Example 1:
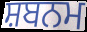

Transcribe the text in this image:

ਸ਼ਬਨਮ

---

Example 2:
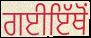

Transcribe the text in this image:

ਗਈਇੱਥੋਂ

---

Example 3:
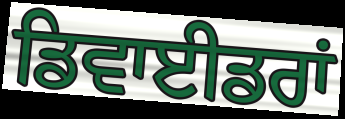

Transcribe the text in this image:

ਡਿਵਾਈਡਰਾਂ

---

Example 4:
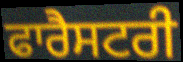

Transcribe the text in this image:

ਫਾਰੈਸਟਰੀ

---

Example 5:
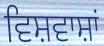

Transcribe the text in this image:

ਵਿਸ਼ਵਾਸ਼ਾਂ